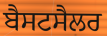
ਬੈਸਟਸੈਲਰ